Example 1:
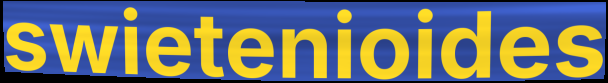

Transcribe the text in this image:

swietenioides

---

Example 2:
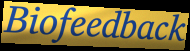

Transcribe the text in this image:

Biofeedback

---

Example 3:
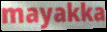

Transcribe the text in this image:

mayakka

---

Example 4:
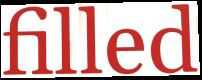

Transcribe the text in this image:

filled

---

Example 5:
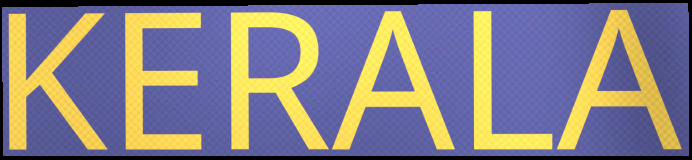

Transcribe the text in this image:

KERALA